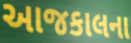
આજકાલના